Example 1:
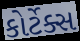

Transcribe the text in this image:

કોર્ટેક્સ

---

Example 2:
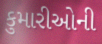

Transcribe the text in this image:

કુમારીઓની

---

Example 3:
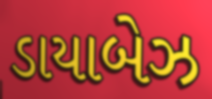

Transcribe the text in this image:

ડાયાબેઝ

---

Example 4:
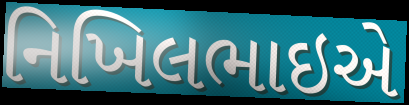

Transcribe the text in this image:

નિખિલભાઇએ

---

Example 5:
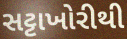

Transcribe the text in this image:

સટ્ટાખોરીથી